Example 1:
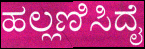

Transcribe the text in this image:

ಹಲ್ಲಣಿಸಿದೈ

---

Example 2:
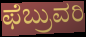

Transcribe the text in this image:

ಫೆಬ್ರುವರಿ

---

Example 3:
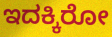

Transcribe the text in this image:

ಇದಕ್ಕಿರೋ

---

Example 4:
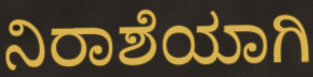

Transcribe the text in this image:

ನಿರಾಶೆಯಾಗಿ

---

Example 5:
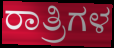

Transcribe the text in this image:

ರಾತ್ರಿಗಳ